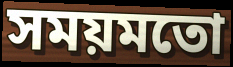
সময়মতো